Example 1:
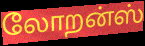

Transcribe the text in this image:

லோறன்ஸ்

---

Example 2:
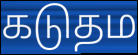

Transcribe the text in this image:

கடுதம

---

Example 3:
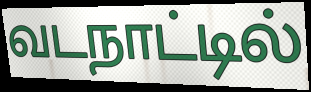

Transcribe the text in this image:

வடநாட்டில்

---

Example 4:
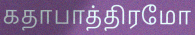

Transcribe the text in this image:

கதாபாத்திரமோ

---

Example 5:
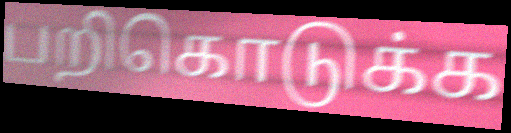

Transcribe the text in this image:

பறிகொடுக்க